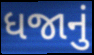
ધજાનું